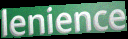
lenience